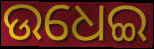
ଉଧେଇ